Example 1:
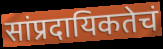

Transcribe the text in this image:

सांप्रदायिकतेचं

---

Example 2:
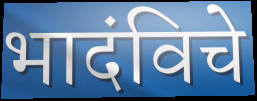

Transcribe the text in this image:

भादंविचे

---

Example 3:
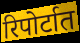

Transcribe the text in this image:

रिपोर्टात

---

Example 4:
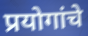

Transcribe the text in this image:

प्रयोगांचे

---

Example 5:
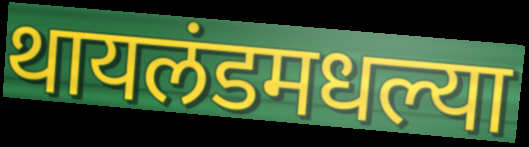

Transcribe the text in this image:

थायलंडमधल्या